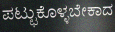
ಪಟ್ಟುಕೊಳ್ಳಬೇಕಾದ